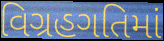
વિગ્રહગતિમાં